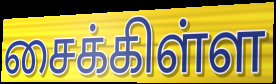
சைக்கிள்ள